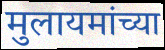
मुलायमांच्या